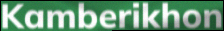
Kamberikhon